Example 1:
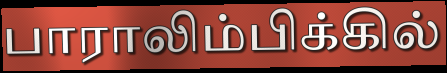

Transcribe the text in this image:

பாராலிம்பிக்கில்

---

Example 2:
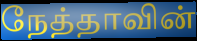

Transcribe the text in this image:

நேத்தாவின்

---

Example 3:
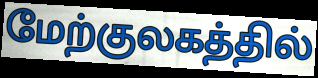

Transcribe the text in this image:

மேற்குலகத்தில்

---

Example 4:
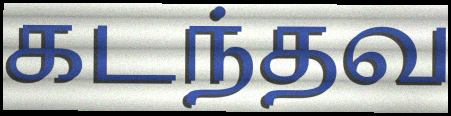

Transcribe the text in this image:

கடந்தவ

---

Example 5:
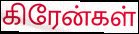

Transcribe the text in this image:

கிரேன்கள்